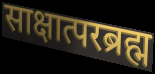
साक्षात्परब्रह्म